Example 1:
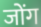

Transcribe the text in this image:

जोंग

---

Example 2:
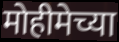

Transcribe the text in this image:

मोहीमेच्या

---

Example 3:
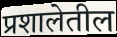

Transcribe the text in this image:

प्रशालेतील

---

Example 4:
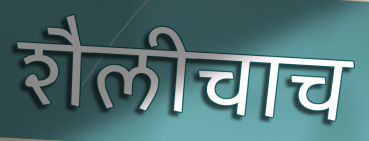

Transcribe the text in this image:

शैलीचाच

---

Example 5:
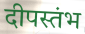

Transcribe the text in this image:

दीपस्तंभ